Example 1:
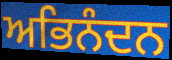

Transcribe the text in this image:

ਅਭਿਨੰਦਨ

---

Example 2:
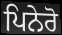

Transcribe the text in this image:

ਪਿਨੇਰੋ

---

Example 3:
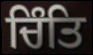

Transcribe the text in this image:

ਚਿੰਤਿ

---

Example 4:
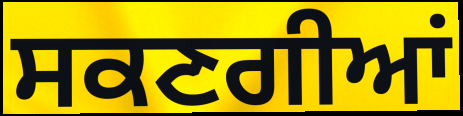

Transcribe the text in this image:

ਸਕਣਗੀਆਂ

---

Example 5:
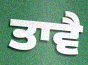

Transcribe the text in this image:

ਤਾਵੈ